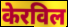
केरविल